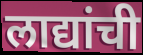
लाद्यांची